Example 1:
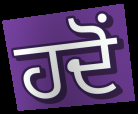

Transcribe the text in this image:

ਹਦੋਂ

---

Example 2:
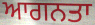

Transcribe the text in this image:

ਆਗਨਤਾ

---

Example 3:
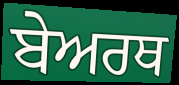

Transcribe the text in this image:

ਬੇਅਰਥ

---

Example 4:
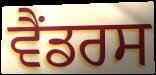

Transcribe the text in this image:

ਵੈਂਡਰਸ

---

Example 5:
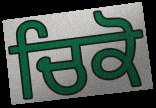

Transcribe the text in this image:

ਚਿਕੋ